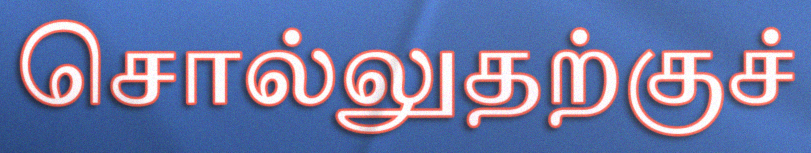
சொல்லுதற்குச்